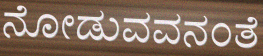
ನೋಡುವವನಂತೆ